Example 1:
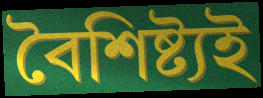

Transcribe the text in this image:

বৈশিষ্ট্যই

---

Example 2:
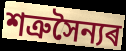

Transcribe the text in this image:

শত্ৰুসৈন্যৰ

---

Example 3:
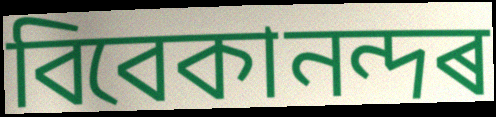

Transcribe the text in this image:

বিবেকানন্দৰ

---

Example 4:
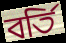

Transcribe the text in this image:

বৰ্তি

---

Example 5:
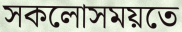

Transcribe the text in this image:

সকলোসময়তে